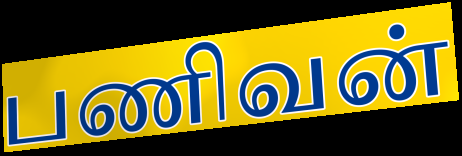
பணிவன்